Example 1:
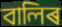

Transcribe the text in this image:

বালিৰ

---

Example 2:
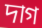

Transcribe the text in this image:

দাগ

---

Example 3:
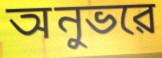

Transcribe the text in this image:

অনুভৱে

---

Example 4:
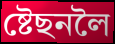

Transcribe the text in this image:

ষ্টেছনলৈ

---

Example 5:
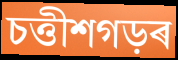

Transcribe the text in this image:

চত্তীশগড়ৰ